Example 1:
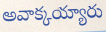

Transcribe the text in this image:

అవాక్కయ్యారు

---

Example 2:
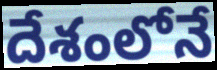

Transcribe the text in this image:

దేశంలోనే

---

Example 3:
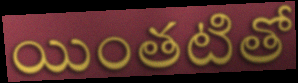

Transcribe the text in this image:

యింతటితో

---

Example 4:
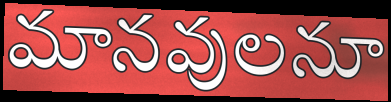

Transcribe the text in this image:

మానవులనూ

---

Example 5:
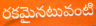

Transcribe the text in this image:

రకమైనటువంటి